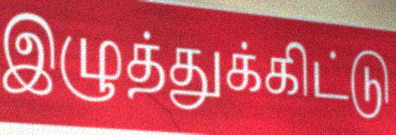
இழுத்துக்கிட்டு